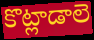
కొట్లాడాలె